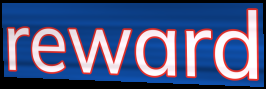
reward